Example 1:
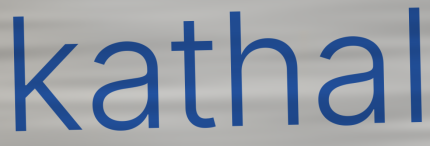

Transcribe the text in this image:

kathal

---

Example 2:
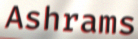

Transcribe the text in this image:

Ashrams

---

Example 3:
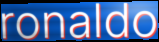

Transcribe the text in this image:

ronaldo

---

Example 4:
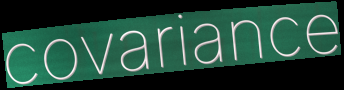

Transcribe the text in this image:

covariance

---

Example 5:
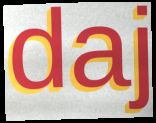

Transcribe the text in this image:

daj